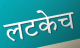
लटकेच